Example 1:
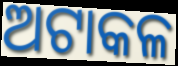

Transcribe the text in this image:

ଅଟାକଳ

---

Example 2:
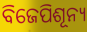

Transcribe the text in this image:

ବିଜେପିଶୂନ୍ୟ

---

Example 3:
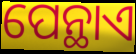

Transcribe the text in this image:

ପେନ୍ଥାଏ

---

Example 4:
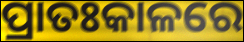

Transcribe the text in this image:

ପ୍ରାତଃକାଳରେ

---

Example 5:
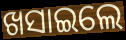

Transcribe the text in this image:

ଖସାଇଲେ